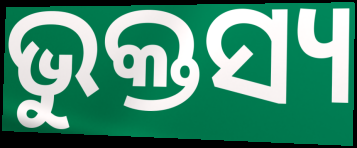
ଭୁକ୍ତସ୍ୟ